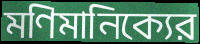
মণিমানিক্যের